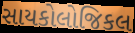
સાયકોલોજિકલ